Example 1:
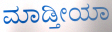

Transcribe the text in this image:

ಮಾಡ್ತೀಯಾ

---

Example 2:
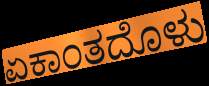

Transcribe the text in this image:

ಏಕಾಂತದೊಳು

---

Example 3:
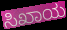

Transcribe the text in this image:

ಸಿಖಾಯ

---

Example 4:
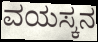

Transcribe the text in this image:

ವಯಸ್ಕನ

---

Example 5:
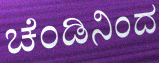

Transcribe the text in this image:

ಚೆಂಡಿನಿಂದ